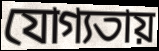
যোগ্যতায়